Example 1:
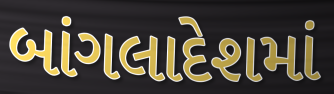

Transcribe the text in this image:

બાંગલાદેશમાં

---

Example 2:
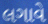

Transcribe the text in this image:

લગાવે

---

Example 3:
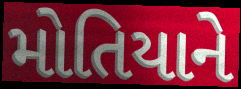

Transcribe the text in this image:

મોતિયાને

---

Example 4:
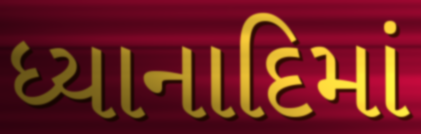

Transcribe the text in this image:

ધ્યાનાદિમાં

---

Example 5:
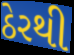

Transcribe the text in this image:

ઠેરથી